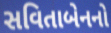
સવિતાબેનનો